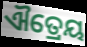
ଐତ୍ରେୟ